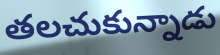
తలచుకున్నాడు